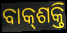
ବାକ୍‍ଶକ୍ତି